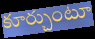
కూర్చుంటూ